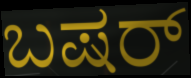
ಬಷರ್